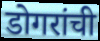
डोगरांची